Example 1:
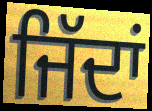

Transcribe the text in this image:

ਜਿੱਦਾਂ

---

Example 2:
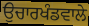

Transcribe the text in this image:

ਉਚਾਰਖੰਡਵਾਲੇ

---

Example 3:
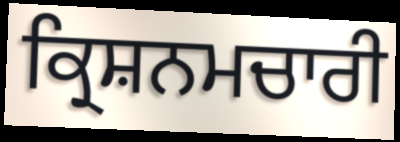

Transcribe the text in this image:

ਕ੍ਰਿਸ਼ਨਮਚਾਰੀ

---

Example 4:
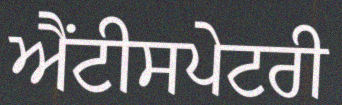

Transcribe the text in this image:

ਐਂਟੀਸਪੇਟਰੀ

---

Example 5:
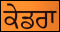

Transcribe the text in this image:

ਕੇਡਰਾ